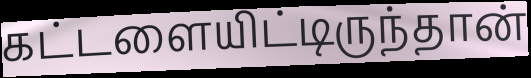
கட்டளையிட்டிருந்தான்